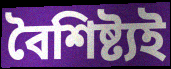
বৈশিষ্ট্যই